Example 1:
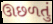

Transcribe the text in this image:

ઊછળતું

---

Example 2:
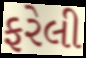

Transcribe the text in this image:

ફરેલી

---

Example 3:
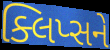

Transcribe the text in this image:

ક્લિપ્સને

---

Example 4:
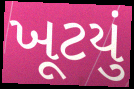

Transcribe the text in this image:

ખૂટયું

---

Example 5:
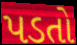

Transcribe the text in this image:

પડતો